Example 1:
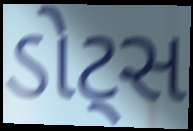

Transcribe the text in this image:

ડોટ્સ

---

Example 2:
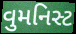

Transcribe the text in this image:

વુમનિસ્ટ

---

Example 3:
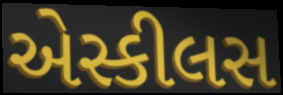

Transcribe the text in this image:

એસ્કીલસ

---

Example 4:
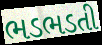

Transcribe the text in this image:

ભડભડતી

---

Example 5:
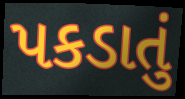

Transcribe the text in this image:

પકડાતું